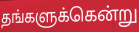
தங்களுக்கென்று